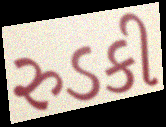
રુડકી